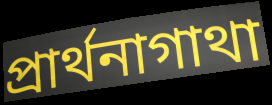
প্রার্থনাগাথা